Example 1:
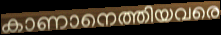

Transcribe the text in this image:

കാണാനെത്തിയവരെ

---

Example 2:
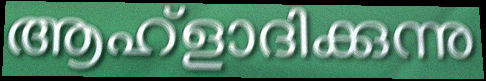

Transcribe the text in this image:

ആഹ്ളാദിക്കുന്നു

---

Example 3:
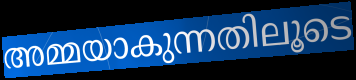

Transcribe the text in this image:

അമ്മയാകുന്നതിലൂടെ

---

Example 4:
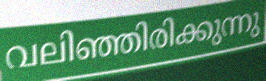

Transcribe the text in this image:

വലിഞ്ഞിരിക്കുന്നു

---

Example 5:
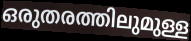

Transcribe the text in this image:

ഒരുതരത്തിലുമുള്ള